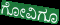
ಗೋವಿಗೂ